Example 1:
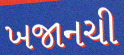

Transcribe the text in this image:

ખજાનચી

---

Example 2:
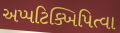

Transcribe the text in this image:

અપ્પટિક્ખિપિત્વા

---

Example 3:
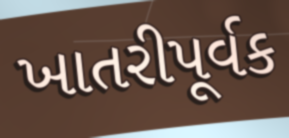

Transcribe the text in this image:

ખાતરીપૂર્વક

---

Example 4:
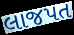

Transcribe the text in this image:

લાજપત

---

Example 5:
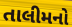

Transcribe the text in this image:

તાલીમનો